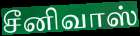
சீனிவாஸ்